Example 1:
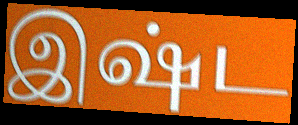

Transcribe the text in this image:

இஷ்ட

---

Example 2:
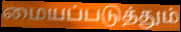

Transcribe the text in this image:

மையப்படுத்தும்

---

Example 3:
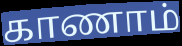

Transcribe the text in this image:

காணாம்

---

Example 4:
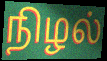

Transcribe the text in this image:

நிழல்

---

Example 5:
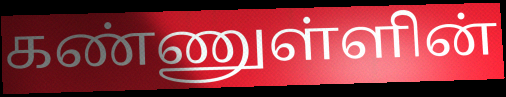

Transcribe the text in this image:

கண்ணுள்ளின்